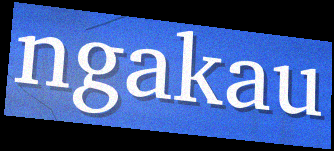
ngakau